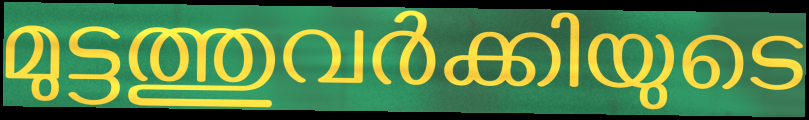
മുട്ടത്തുവർക്കിയുടെ